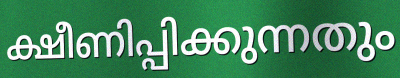
ക്ഷീണിപ്പിക്കുന്നതും